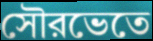
সৌরভেতে